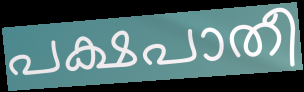
പക്ഷപാതീ